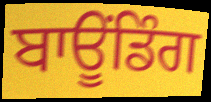
ਬਾਊਂਡਿੰਗ